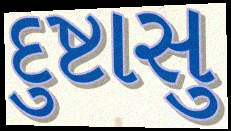
દુષ્ટાસુ